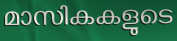
മാസികകളുടെ